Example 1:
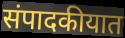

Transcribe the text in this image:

संपादकीयात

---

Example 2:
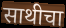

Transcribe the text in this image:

साथीचा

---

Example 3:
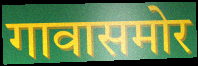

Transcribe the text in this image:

गावासमोर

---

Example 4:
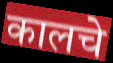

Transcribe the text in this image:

कालचे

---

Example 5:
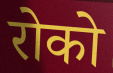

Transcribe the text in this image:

रोको